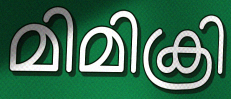
മിമിക്രി